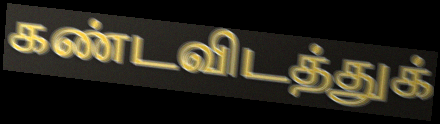
கண்டவிடத்துக்